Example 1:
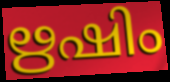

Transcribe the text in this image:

ഋഷിം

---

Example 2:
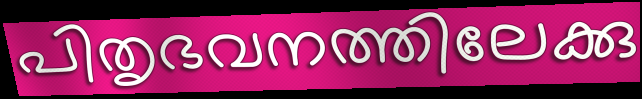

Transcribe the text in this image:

പിതൃഭവനത്തിലേക്കു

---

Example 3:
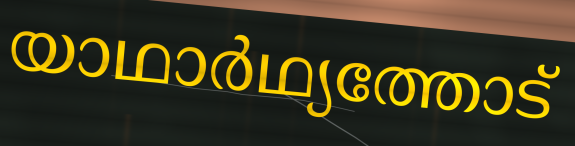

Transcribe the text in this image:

യാഥാർഥ്യത്തോട്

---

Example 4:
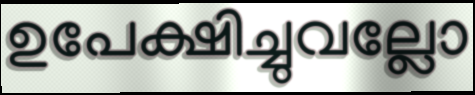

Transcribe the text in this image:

ഉപേക്ഷിച്ചുവല്ലോ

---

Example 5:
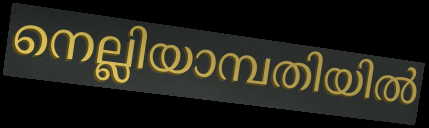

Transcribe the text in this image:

നെല്ലിയാമ്പതിയിൽ